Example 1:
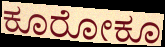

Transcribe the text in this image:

ಕೂರೋಕೂ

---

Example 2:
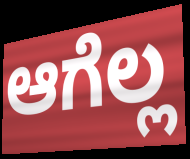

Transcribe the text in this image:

ಆಗೆಲ್ಲ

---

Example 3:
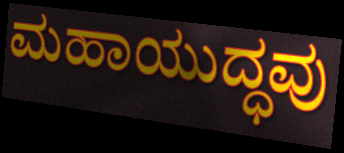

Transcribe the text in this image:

ಮಹಾಯುದ್ಧವು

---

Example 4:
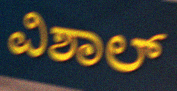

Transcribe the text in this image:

ವಿಶಾಲ್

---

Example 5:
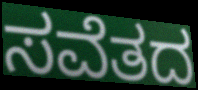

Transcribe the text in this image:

ಸವೆತದ